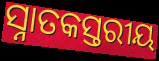
ସ୍ନାତକସ୍ତରୀୟ